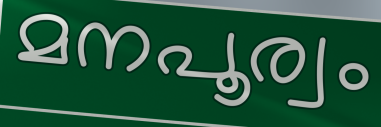
മനപൂര്വം